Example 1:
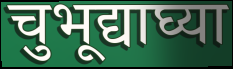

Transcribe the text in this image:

चुभूद्याघ्या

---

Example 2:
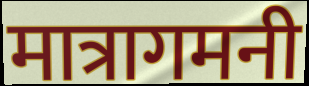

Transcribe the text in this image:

मात्रागमनी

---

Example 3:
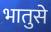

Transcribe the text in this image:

भातुसे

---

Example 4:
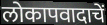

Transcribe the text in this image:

लोकापवादाचें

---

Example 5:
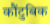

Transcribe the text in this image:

कौंटुबिक